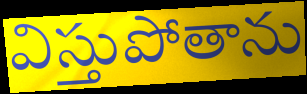
విస్తుపోతాను